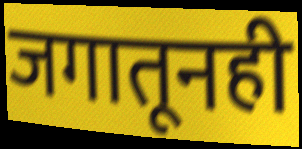
जगातूनही